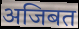
अजिबत